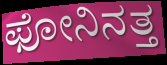
ಫೋನಿನತ್ತ